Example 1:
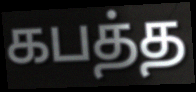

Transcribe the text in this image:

கபத்த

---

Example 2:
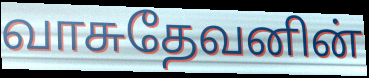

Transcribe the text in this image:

வாசுதேவனின்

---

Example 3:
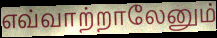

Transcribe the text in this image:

எவ்வாற்றாலேனும்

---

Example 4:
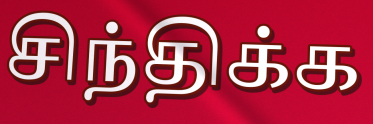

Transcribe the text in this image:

சிந்திக்க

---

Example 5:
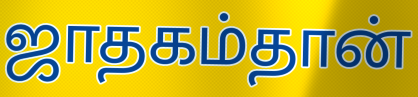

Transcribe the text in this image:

ஜாதகம்தான்